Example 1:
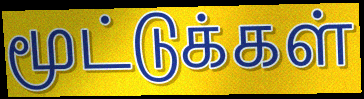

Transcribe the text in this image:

மூட்டுக்கள்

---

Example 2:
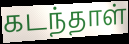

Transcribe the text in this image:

கடந்தாள்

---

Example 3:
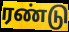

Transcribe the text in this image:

ரண்டு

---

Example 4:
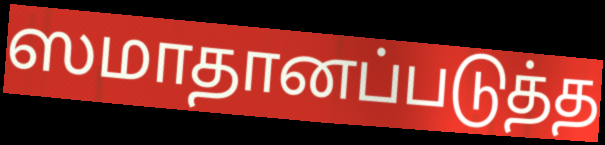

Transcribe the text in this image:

ஸமாதானப்படுத்த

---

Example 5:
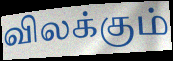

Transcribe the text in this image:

விலக்கும்